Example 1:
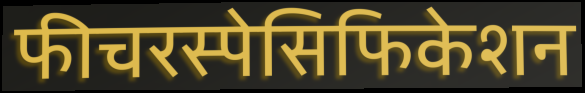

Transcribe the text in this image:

फीचरस्पेसिफिकेशन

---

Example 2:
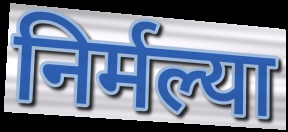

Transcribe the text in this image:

निर्मल्या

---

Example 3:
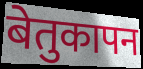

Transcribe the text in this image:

बेतुकापन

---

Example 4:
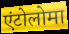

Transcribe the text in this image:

एंटोलोमा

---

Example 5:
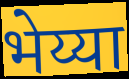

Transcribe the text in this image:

भेय्या